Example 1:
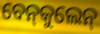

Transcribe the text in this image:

ବେନ୍‍କୁଲେନ୍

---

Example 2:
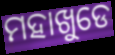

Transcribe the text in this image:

ମହାଖୁଡେ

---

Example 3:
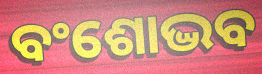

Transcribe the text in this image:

ବଂଶୋଦ୍ଭବ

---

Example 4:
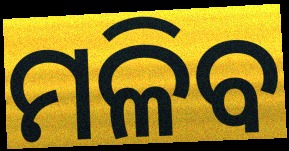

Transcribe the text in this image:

ମଳିବ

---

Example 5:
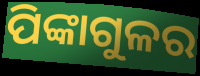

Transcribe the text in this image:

ପିଙ୍କାଗୁଳର